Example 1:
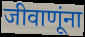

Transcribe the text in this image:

जीवाणूंना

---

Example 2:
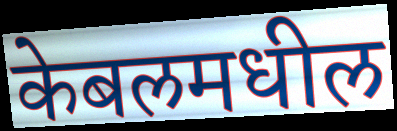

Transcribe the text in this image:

केबलमधील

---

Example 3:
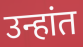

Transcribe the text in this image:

उन्हांत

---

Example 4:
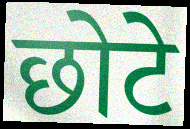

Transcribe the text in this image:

छोटे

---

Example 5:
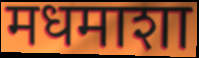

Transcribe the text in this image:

मधमाशा